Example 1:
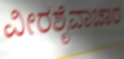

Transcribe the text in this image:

ವೀರಶೈವಾಚಾರ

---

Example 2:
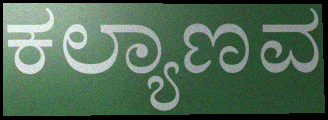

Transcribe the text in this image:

ಕಲ್ಯಾಣವ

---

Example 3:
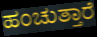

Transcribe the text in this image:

ಹಂಚುತ್ತಾರೆ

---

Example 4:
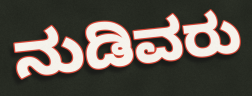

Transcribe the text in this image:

ನುಡಿವರು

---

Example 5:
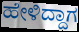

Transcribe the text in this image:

ಹೇಳಿದ್ದಾಗ